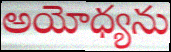
అయోధ్యను